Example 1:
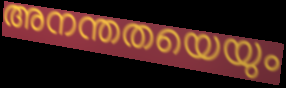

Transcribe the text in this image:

അനന്തതയെയും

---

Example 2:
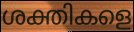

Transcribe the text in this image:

ശക്തികളെ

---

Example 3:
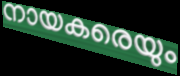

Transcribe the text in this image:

നായകരെയും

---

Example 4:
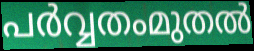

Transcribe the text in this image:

പർവ്വതംമുതൽ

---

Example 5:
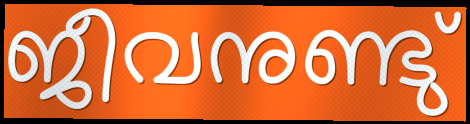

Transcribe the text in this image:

ജീവനുണ്ടു്